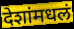
देशांमधलं